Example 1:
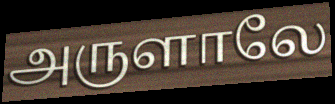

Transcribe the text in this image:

அருளாலே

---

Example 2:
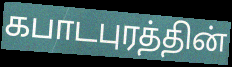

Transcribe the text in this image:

கபாடபுரத்தின்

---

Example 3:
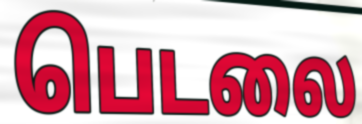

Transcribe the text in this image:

பெடலை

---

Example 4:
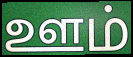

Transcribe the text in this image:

ஊம்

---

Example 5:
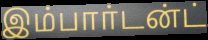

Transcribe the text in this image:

இம்பார்டன்ட்